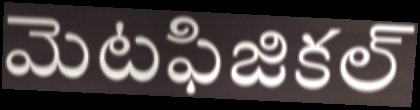
మెటఫిజికల్